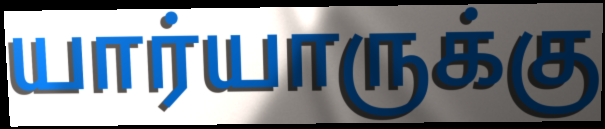
யார்யாருக்கு